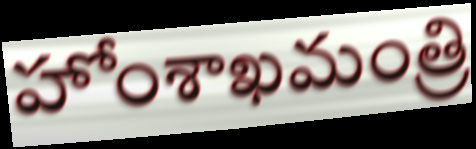
హోంశాఖమంత్రి